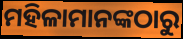
ମହିଳାମାନଙ୍କଠାରୁ